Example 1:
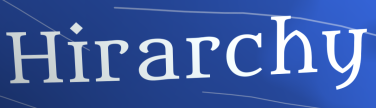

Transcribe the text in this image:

Hirarchy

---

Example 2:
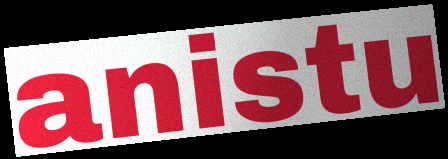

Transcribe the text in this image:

anistu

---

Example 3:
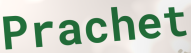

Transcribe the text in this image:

Prachet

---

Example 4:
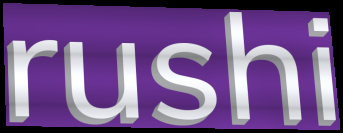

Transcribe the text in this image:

rushi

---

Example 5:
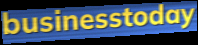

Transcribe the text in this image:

businesstoday